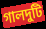
গালদুটি